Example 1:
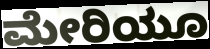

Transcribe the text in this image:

ಮೇರಿಯೂ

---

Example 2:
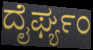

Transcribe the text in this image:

ದೈರ್ಘ್ಯಂ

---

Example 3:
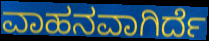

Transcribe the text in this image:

ವಾಹನವಾಗಿರ್ದೆ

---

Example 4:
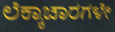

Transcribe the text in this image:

ಲೆಕ್ಕಾಚಾರಗಳೇ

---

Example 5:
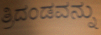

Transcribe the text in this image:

ತ್ರಿದಂಡವನ್ನು